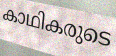
കാഥികരുടെ